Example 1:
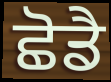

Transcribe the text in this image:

ਛੋਡੈ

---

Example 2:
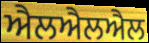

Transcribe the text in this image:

ਐਲਐਲਐਲ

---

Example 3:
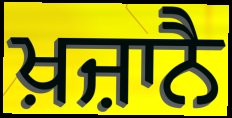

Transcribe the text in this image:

ਖ਼ਜ਼ਾਨੈ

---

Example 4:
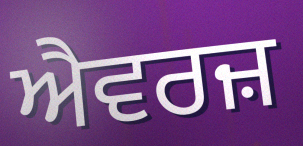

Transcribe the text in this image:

ਐਵਰਜ਼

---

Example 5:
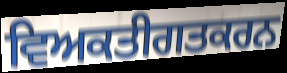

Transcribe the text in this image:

ਵਿਅਕਤੀਗਤਕਰਨ